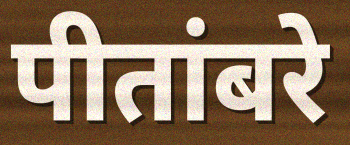
पीतांबरे